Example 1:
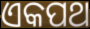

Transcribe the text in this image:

ଏକପଥ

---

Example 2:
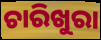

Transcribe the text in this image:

ଚାରିଖୁରା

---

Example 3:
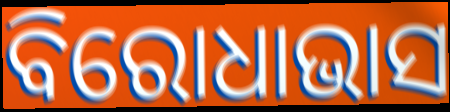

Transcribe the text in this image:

ବିରୋଧାଭାସ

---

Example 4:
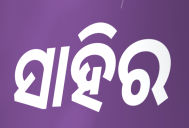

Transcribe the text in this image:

ସାହିର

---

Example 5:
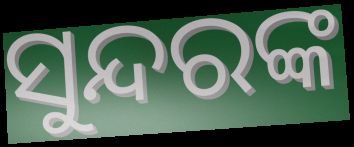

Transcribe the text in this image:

ସୁନ୍ଦରଙ୍କ